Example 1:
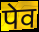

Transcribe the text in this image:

पेव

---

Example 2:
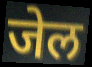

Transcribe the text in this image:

जेल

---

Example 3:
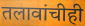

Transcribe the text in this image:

तलावांचीही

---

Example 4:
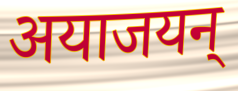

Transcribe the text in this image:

अयाजयन्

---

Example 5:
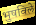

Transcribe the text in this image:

भुषविले